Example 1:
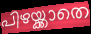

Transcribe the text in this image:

പിഴയ്ക്കാതെ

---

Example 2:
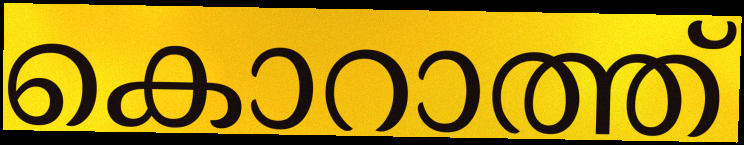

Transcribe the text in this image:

കൊറാത്ത്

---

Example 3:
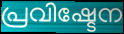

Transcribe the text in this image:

പ്രവിഷ്ടേന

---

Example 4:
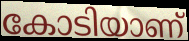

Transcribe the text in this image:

കോടിയാണ്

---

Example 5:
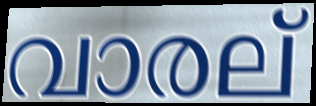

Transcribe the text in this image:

വാരല്